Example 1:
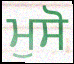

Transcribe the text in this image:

ਮੁਸੋ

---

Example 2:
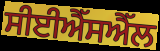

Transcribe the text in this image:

ਸੀਈਐੱਸਐੱਲ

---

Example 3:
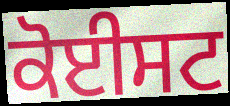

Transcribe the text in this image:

ਕੋਈਸਟ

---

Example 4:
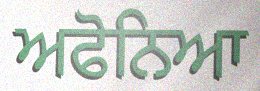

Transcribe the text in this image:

ਅਫੋਨਿਆ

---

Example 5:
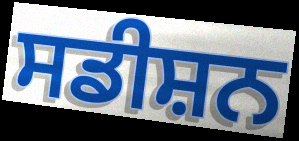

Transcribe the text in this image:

ਸਡੀਸ਼ਨ